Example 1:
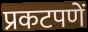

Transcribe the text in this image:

प्रकटपणें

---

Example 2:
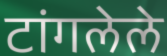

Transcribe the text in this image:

टांगलेले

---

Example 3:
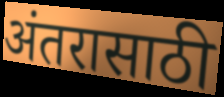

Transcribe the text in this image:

अंतरासाठी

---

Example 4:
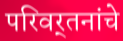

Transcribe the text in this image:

परिवर्तनांचे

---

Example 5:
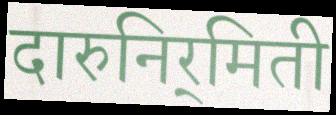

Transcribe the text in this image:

दारुनिर्मिती